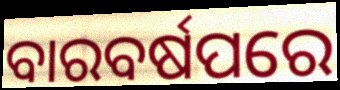
ବାରବର୍ଷପରେ